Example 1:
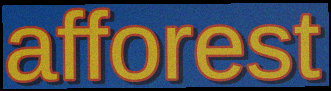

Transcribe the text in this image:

afforest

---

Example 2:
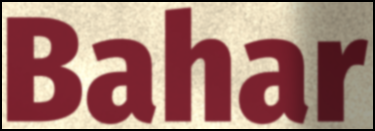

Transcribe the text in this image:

Bahar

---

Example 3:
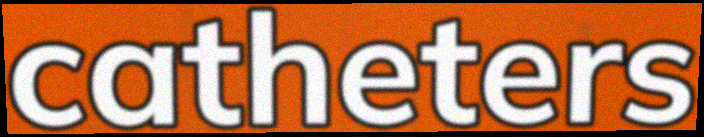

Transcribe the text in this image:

catheters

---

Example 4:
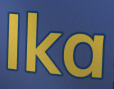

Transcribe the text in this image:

Ika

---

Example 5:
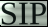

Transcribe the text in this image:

SIP